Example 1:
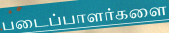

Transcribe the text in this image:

படைப்பாளர்களை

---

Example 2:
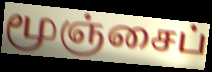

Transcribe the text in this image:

மூஞ்சைப்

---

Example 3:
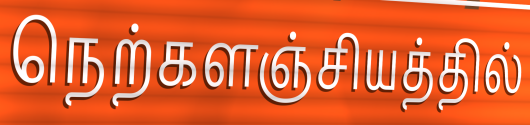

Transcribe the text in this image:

நெற்களஞ்சியத்தில்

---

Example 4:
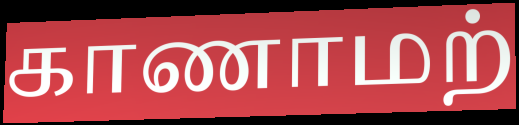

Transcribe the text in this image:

காணாமற்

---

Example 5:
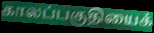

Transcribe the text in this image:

காலப்பகுதியைக்